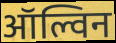
ऑल्विन